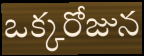
ఒక్కరోజున